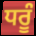
ਧਰੂੰ